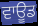
ਵਾਊਡ